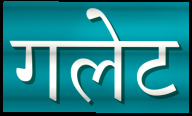
गलेट